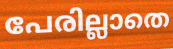
പേരില്ലാതെ